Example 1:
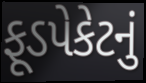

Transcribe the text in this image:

ફૂડપેકેટનું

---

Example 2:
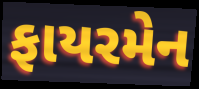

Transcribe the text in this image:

ફાયરમેન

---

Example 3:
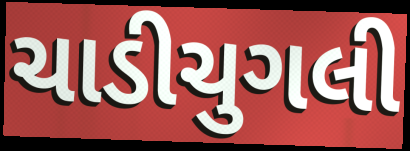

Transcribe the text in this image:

ચાડીચુગલી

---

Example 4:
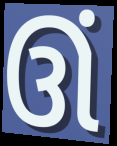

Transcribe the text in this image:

ઊં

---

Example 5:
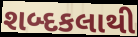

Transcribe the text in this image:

શબ્દકલાથી